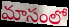
మాసంలో